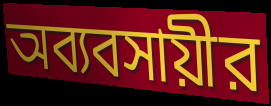
অব্যবসায়ীর